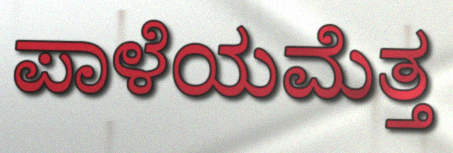
ಪಾಳೆಯಮೆತ್ತ